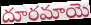
దూరమాయె